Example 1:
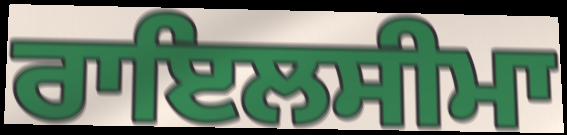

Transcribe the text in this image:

ਰਾਇਲਸੀਮਾ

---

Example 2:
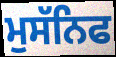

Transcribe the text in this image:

ਮੁਸੱਨਿਫ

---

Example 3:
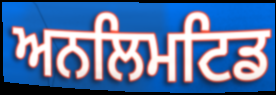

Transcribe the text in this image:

ਅਨਲਿਮਟਿਡ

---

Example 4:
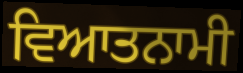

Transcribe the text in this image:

ਵਿਆਤਨਾਮੀ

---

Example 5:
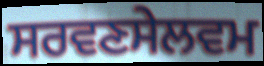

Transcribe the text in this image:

ਸਰਵਣਸੇਲਵਮ